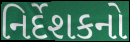
નિર્દેશકનો